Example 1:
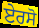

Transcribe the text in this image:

ਏਰਸੋ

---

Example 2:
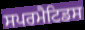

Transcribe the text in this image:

ਸਪਰਮੈਟਿਡਸ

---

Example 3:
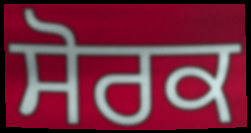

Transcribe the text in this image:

ਸੋਰਕ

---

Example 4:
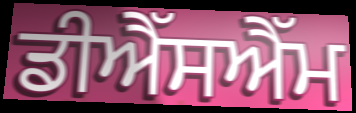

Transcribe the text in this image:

ਡੀਐੱਸਐੱਮ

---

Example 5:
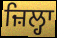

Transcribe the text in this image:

ਜ਼ਿਲ੍ਹ੍ਹਾ